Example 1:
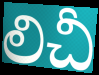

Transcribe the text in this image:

లిచీ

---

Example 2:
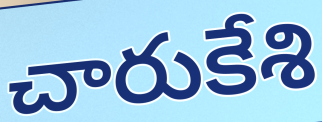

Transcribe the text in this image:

చారుకేశి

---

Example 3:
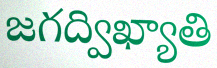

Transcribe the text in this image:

జగద్విఖ్యాతి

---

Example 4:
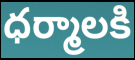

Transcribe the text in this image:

ధర్మాలకి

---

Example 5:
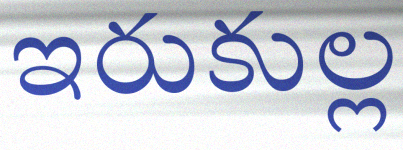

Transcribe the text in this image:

ఇరుకుల్ల